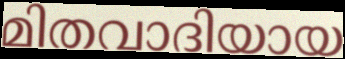
മിതവാദിയായ